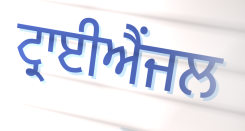
ਟ੍ਰਾਈਐਂਜਲ